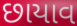
છાયાવ